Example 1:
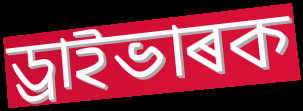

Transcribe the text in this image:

ড্ৰাইভাৰক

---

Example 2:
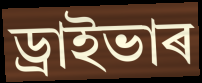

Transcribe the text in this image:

ড্ৰাইভাৰ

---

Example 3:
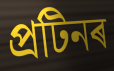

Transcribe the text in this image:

প্ৰটিনৰ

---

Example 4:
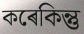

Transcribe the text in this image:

কৰেকিন্তু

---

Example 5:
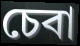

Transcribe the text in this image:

চেবা